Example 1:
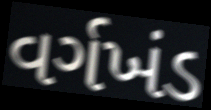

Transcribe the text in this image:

વર્ગખંડ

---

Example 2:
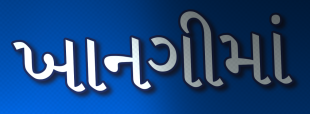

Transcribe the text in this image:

ખાનગીમાં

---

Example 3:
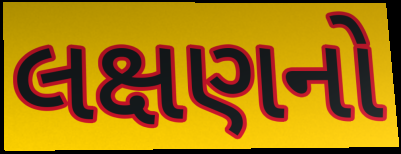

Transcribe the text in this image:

લક્ષણનો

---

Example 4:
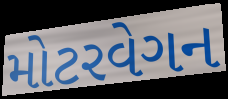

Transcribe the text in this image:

મોટરવેગન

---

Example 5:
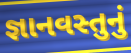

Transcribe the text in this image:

જ્ઞાનવસ્તુનું